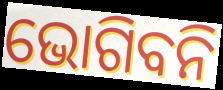
ଭୋଗିବନି